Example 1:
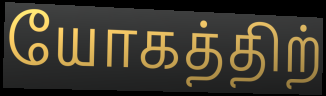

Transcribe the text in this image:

யோகத்திற்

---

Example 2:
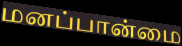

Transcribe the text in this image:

மனப்பான்மை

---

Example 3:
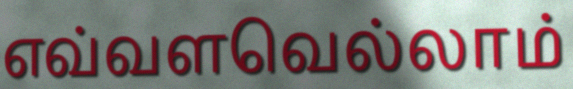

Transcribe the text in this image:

எவ்வளவெல்லாம்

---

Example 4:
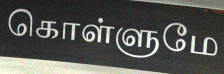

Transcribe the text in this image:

கொள்ளுமே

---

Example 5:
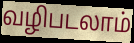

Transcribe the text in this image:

வழிபடலாம்